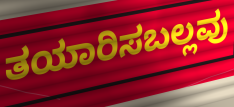
ತಯಾರಿಸಬಲ್ಲವು